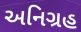
અનિગ્રહ